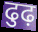
ढुढ़